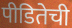
पीडितेची